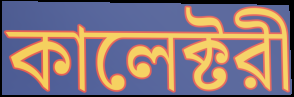
কালেক্টরী